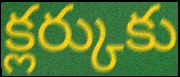
క్లర్కుకు